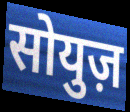
सोयुज़